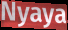
Nyaya